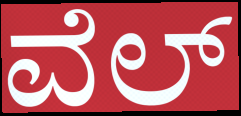
ವೆಲ್